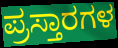
ಪ್ರಸ್ತಾರಗಳ